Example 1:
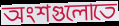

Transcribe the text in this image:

অংশগুলোতে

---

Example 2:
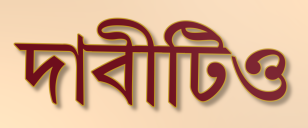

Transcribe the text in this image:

দাবীটিও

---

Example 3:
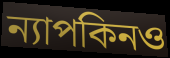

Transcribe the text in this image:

ন্যাপকিনও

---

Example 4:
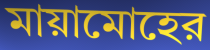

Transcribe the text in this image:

মায়ামোহের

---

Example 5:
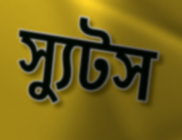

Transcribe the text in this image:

স্যুটস